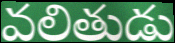
వలితుడు